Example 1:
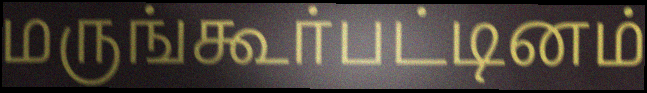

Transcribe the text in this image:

மருங்கூர்பட்டினம்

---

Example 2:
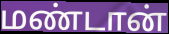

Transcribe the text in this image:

மண்டான்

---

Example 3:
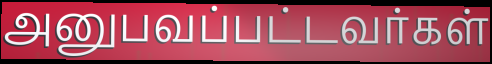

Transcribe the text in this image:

அனுபவப்பட்டவர்கள்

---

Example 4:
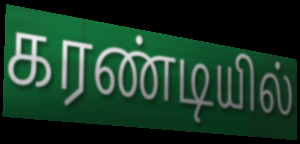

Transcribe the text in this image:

கரண்டியில்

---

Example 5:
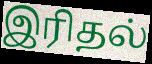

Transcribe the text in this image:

இரிதல்